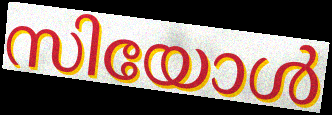
സിയോൾ